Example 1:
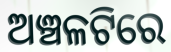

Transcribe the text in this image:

ଅଞ୍ଚଳଟିରେ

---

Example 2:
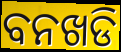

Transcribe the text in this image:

ବନଖଡି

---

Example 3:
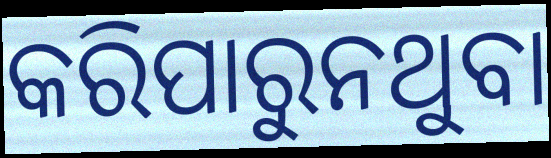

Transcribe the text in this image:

କରିପାରୁନଥୁବା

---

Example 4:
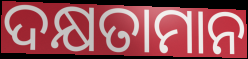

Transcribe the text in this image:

ଦକ୍ଷତାମାନ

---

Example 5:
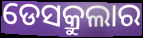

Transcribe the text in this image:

ଡେସକ୍ରୁଲାର